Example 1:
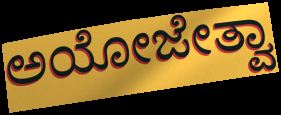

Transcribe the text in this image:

ಅಯೋಜೇತ್ವಾ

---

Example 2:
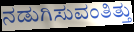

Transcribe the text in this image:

ನಡುಗಿಸುವಂತಿತ್ತು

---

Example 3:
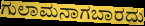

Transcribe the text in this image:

ಗುಲಾಮನಾಗಬಾರದು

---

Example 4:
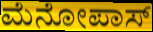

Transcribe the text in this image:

ಮೆನೋಪಾಸ್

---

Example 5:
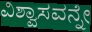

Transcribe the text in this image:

ವಿಶ್ವಾಸವನ್ನೇ